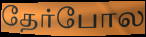
தேர்போல